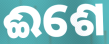
ଈଶେ